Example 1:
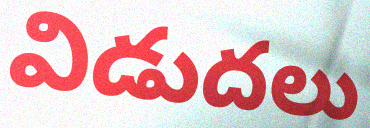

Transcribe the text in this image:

విడుదలు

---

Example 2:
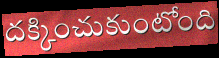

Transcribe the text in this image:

దక్కించుకుంటోంది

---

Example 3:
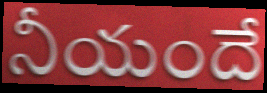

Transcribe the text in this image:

నీయందే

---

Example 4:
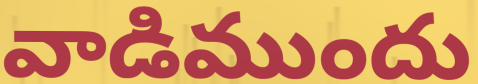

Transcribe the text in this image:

వాడిముందు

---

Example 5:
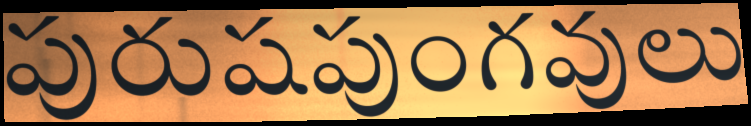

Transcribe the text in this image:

పురుషపుంగవులు